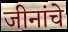
जीनांचे